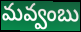
మవ్వంబు